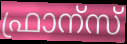
ഫ്രാന്സ്